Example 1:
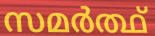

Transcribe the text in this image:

സമർത്ഥ്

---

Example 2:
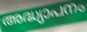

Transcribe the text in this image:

അദ്ധ്യാപനം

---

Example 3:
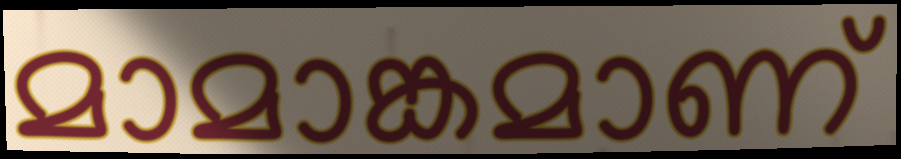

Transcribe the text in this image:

മാമാങ്കമാണ്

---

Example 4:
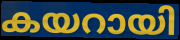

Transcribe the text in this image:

കയറായി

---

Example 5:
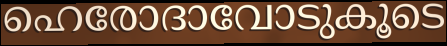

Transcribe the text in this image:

ഹെരോദാവോടുകൂടെ